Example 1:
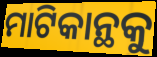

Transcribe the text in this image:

ମାଟିକାନ୍ଥକୁ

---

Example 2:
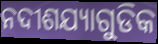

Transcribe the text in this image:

ନଦୀଶଯ୍ୟାଗୁଡିକ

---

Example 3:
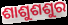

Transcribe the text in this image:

ଶାଶୁଶଶୁର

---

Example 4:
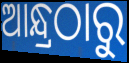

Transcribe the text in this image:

ଆନ୍ଧ୍ରଠାରୁ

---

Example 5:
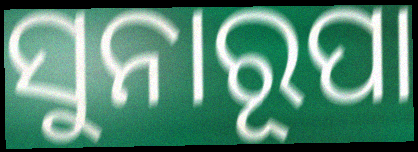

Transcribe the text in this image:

ସୁନାରୂପା